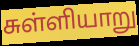
சுள்ளியாறு